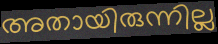
അതായിരുന്നില്ല